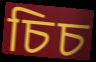
চিচ